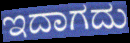
ಇದಾಗದು